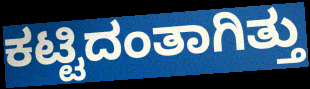
ಕಟ್ಟಿದಂತಾಗಿತ್ತು